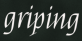
griping